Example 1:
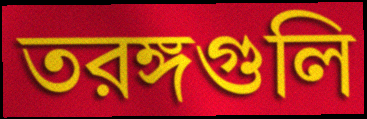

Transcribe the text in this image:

তরঙ্গগুলি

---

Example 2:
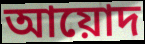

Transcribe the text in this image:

আয়োদ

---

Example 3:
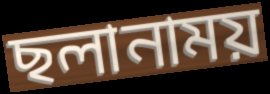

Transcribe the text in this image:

ছলানাময়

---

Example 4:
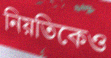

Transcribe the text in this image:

নিয়তিকেও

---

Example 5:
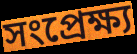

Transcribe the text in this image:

সংপ্রেক্ষ্য